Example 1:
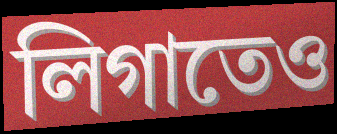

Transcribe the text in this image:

লিগাতেও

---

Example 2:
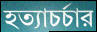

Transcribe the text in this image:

হত্যাচর্চার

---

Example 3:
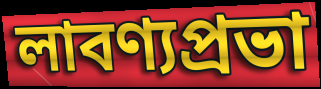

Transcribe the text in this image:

লাবণ্যপ্রভা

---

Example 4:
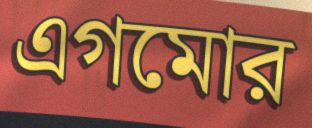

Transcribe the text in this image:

এগমোর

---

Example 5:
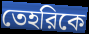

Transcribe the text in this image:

তেহরিকে